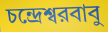
চন্দ্রেশ্বরবাবু